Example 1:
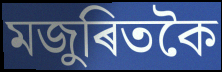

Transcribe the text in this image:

মজুৰিতকৈ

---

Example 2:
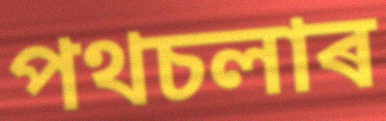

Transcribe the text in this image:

পথচলাৰ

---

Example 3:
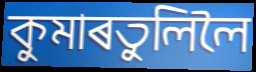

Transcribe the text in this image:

কুমাৰতুলিলৈ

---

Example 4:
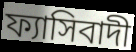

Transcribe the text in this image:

ফ্যাসিবাদী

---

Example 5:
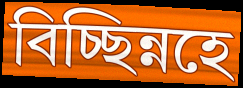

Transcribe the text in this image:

বিচ্ছিন্নহে